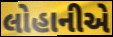
લોહાનીએ